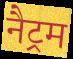
नैट्रम